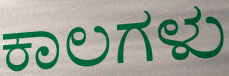
ಕಾಲಗಳು